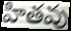
హితవు